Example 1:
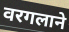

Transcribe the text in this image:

वरगलाने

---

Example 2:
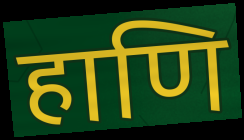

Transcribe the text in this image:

हाणि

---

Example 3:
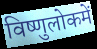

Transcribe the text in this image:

विष्णुलोकमें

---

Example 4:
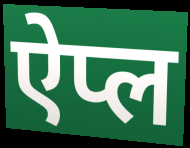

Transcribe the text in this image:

ऐप्ल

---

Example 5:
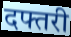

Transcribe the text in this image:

दफ्तरी